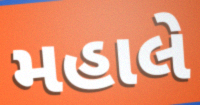
મહાલે